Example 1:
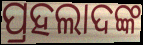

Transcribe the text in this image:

ପ୍ରହଲାଦଙ୍କ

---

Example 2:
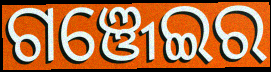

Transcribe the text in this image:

ଗଞ୍ଜେଇର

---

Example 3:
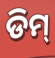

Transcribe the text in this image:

ଡିମ୍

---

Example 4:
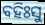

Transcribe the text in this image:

ବହିଃସୁ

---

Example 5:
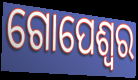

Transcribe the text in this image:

ଗୋପେଶ୍ଵର